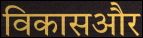
विकासऔर